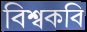
বিশ্বকবি